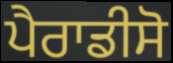
ਪੈਰਾਡੀਸੋ